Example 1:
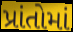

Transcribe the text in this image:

પ્રાંતોમાં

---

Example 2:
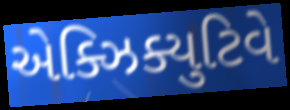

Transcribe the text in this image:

એક્ઝિક્યુટિવે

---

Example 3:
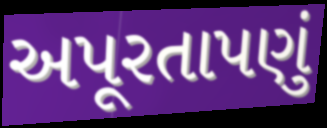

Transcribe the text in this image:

અપૂરતાપણું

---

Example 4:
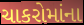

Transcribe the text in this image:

ચાકરોમાંના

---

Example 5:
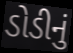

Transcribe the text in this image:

ડોડીનું